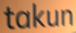
takun